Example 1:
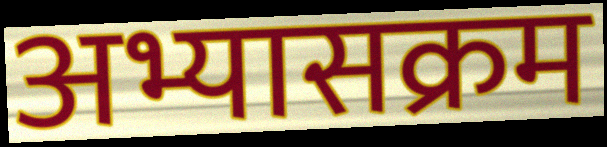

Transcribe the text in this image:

अभ्यासक्रम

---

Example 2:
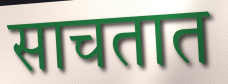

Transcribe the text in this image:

साचतात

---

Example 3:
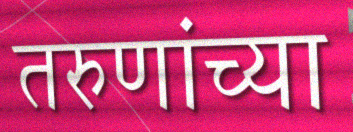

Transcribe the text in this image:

तरुणांच्या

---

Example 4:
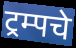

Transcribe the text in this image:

ट्रम्पचे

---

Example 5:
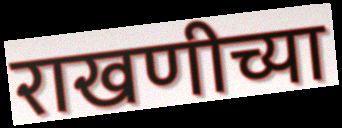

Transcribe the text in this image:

राखणीच्या